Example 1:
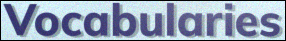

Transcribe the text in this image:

Vocabularies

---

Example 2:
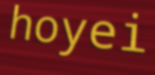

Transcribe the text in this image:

hoyei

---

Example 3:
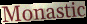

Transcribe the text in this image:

Monastic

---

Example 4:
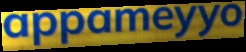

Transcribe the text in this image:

appameyyo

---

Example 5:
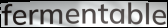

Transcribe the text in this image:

fermentable